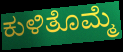
ಕುಳಿತೊಮ್ಮೆ